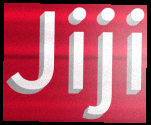
Jiji